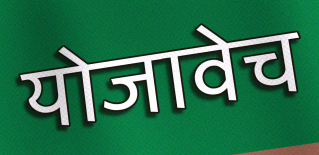
योजावेच